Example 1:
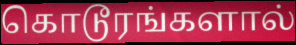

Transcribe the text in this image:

கொடூரங்களால்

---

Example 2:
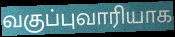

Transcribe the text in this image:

வகுப்புவாரியாக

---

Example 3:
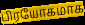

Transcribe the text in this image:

பிரயோகமாக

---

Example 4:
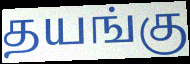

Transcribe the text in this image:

தயங்கு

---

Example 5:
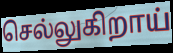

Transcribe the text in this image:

செல்லுகிறாய்